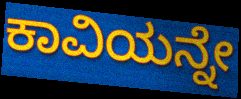
ಕಾವಿಯನ್ನೇ